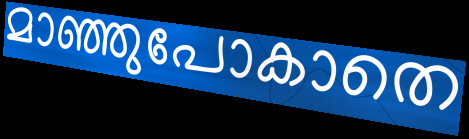
മാഞ്ഞുപോകാതെ